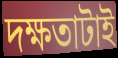
দক্ষতাটাই